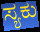
ಸ್ಯಕು